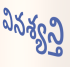
వినశ్యన్తి